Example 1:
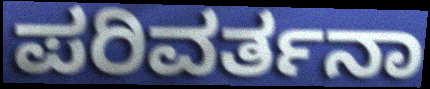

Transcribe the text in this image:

ಪರಿವರ್ತನಾ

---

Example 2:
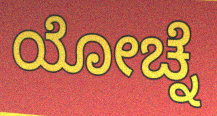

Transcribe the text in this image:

ಯೋಚ್ನೆ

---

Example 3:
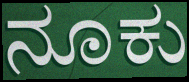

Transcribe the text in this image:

ನೂಕು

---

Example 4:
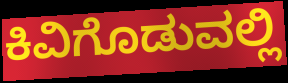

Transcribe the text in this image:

ಕಿವಿಗೊಡುವಲ್ಲಿ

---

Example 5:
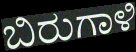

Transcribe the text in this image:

ಬಿರುಗಾಳಿ